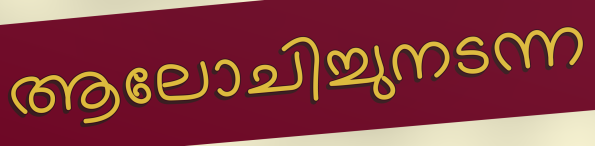
ആലോചിച്ചുനടന്ന